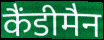
कैंडीमैन